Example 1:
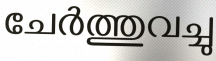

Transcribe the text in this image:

ചേർത്തുവച്ചു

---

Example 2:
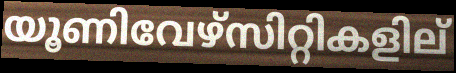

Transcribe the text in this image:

യൂണിവേഴ്സിറ്റികളില്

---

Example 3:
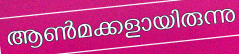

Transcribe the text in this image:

ആൺമക്കളായിരുന്നു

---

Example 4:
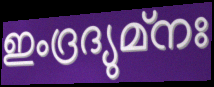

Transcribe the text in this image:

ഇംദ്രദ്യുമ്നഃ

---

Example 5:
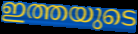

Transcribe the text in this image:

ഇത്തയുടെ